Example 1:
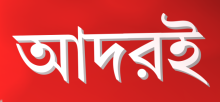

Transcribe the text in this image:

আদরই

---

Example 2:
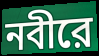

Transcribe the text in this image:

নবীরে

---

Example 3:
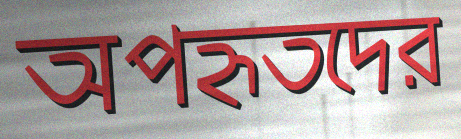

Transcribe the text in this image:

অপহৃতদের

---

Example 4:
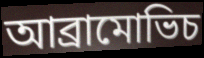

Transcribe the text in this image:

আব্রামোভিচ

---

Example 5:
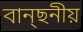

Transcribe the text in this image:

বান্ছনীয়